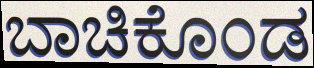
ಬಾಚಿಕೊಂಡ